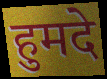
हुमदे